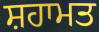
ਸ਼ਹਾਮਤ